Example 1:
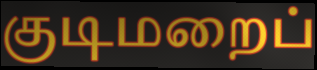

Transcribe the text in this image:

குடிமறைப்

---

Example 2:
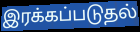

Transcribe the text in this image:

இரக்கப்படுதல்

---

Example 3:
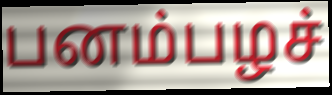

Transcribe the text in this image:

பனம்பழச்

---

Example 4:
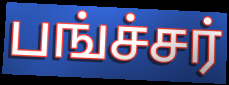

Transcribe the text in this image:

பங்ச்சர்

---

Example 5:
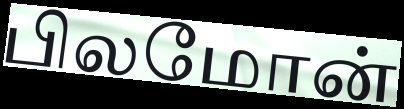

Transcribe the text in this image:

பிலமோன்